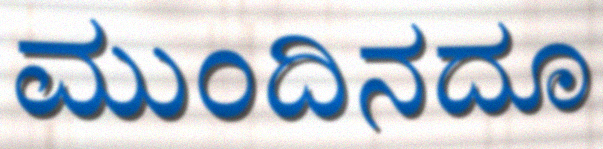
ಮುಂದಿನದೂ